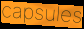
capsules